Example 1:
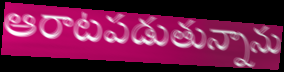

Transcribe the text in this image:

ఆరాటపడుతున్నాను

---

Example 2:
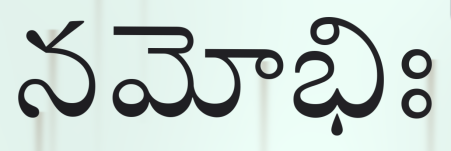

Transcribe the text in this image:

నమోభిః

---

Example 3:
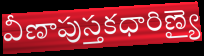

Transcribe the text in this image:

వీణాపుస్తకధారిణ్యై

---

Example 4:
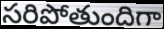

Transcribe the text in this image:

సరిపోతుందిగా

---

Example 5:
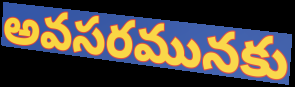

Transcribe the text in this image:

అవసరమునకు